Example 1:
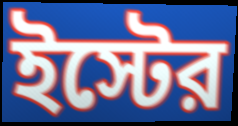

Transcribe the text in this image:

ইস্টের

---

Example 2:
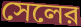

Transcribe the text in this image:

সেলের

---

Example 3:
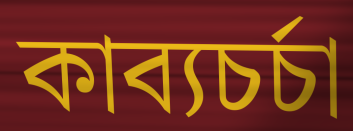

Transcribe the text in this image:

কাব্যচর্চা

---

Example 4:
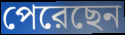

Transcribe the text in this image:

পেরেছেন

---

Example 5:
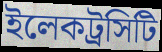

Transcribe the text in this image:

ইলেকট্রসিটি